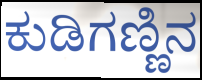
ಕುಡಿಗಣ್ಣಿನ